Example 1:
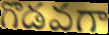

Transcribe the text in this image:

గొడవగా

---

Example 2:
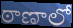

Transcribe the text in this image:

ఠాణాలో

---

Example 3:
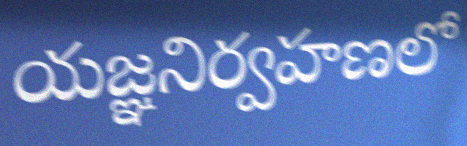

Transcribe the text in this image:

యజ్ఞనిర్వహణలో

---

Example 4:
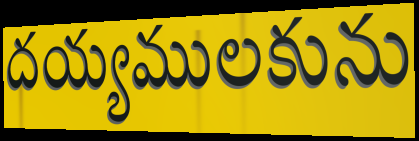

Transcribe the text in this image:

దయ్యములకును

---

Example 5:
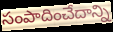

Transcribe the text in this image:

సంపాదించేదాన్ని